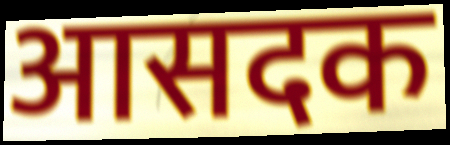
आसदक